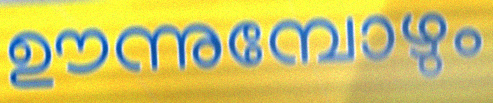
ഊന്നുമ്പോഴും